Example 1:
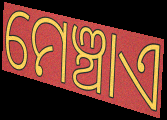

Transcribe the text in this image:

ମେଞ୍ଚାଏ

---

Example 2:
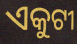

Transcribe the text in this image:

ଏକୁଟୀ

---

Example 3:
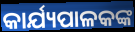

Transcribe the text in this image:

କାର୍ଯ୍ୟପାଳକଙ୍କ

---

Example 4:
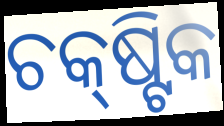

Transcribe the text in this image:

ଚକ୍‌ଷ୍ଟିକ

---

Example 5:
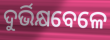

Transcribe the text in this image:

ଦୁର୍ଭିକ୍ଷବେଳେ